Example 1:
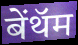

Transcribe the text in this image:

बेंथॅम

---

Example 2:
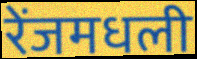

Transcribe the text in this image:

रेंजमधली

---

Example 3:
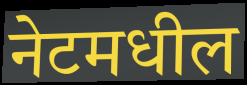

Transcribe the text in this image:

नेटमधील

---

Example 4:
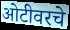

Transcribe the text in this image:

ओटीवरचे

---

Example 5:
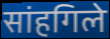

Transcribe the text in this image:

सांहगिले